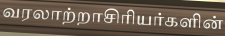
வரலாற்றாசிரியர்களின்